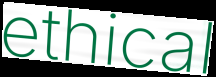
ethical